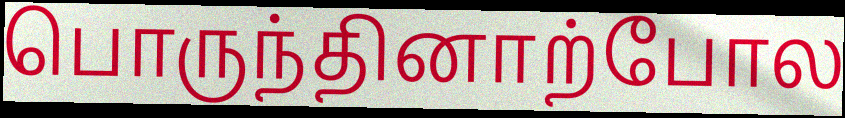
பொருந்தினாற்போல